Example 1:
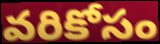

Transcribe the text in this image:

వరికోసం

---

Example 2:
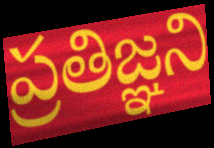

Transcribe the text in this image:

ప్రతిజ్ఞని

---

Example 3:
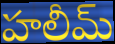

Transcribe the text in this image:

హలీమ్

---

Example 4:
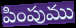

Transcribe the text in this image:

పింపుము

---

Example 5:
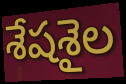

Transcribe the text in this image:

శేషశైల